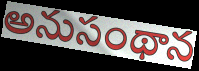
అనుసంథాన